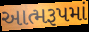
આત્મરૂપમાં